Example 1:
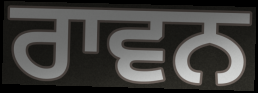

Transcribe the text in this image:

ਰਾਵਨ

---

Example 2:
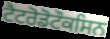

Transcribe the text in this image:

ਟੈਟਰੋਡੋਟੌਕਸਿਨ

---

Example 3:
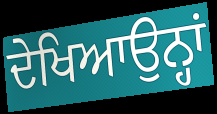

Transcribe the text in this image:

ਦੇਖਿਆਉਨ੍ਹਾਂ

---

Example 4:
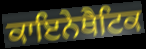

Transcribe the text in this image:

ਕਾਇਨੇਥੈਟਿਕ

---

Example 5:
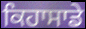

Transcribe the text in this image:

ਕਿਹਾਸਾਡੇ